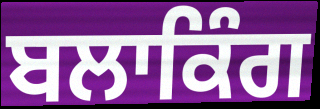
ਬਲਾਕਿੰਗ